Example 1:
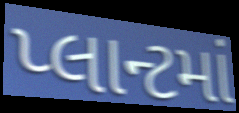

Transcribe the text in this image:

પ્લાન્ટમાં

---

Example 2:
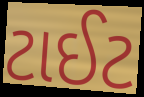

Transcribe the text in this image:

ટાઈટ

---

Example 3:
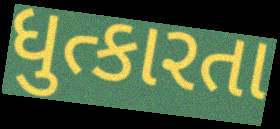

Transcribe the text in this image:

ધુત્કારતા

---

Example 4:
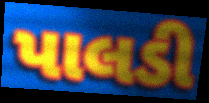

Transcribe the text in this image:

પાલડી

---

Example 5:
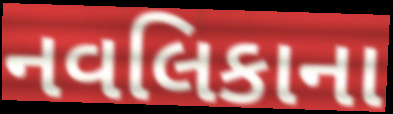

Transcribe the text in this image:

નવલિકાના